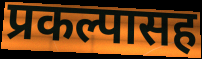
प्रकल्पासह